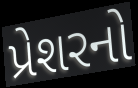
પ્રેશરનો